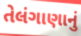
તેલંગાણાનું